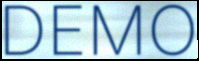
DEMO